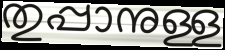
തുപ്പാനുള്ള